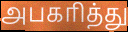
அபகரித்து